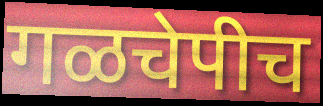
गळचेपीच